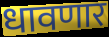
धावणार